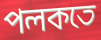
পলকতে